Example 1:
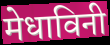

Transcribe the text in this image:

मेधाविनी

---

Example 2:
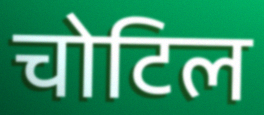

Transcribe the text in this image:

चोटिल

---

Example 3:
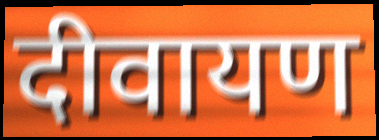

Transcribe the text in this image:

दीवायण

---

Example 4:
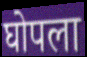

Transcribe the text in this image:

घोपला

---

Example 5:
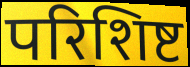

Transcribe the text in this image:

परिशिष्ट